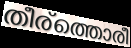
തീര്ത്തൊരീ